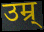
उम्र्